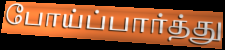
போய்ப்பார்த்து